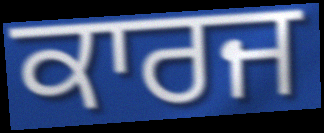
ਕਾਰਜ